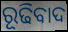
ରୂଢିବାଦ